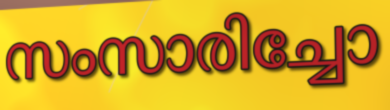
സംസാരിച്ചോ